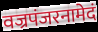
वज्रपंजरनामेदं